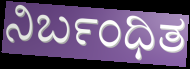
ನಿರ್ಬಂಧಿತ